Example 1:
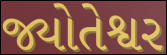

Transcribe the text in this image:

જ્યોતેશ્વર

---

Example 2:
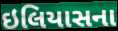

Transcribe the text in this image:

ઇલિયાસના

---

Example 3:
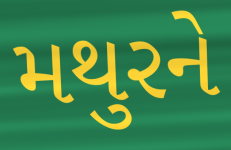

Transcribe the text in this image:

મથુરને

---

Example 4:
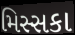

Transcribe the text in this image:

મિસ્સકા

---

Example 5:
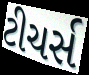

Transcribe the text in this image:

ટીચર્સ